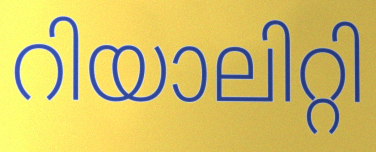
റിയാലിറ്റി